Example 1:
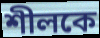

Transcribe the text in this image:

শীলকে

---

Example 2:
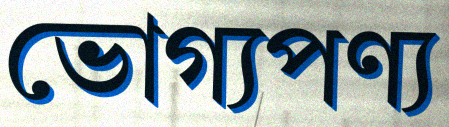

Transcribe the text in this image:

ভোগ্যপণ্য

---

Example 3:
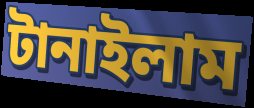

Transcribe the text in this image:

টানাইলাম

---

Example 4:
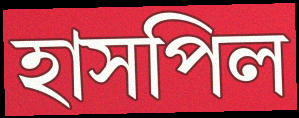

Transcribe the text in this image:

হাসপিল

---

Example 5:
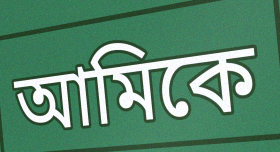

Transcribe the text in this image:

আমিকে